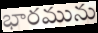
భారమును